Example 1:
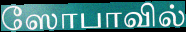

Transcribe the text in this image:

ஸோபாவில்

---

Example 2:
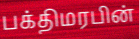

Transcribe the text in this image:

பக்திமரபின்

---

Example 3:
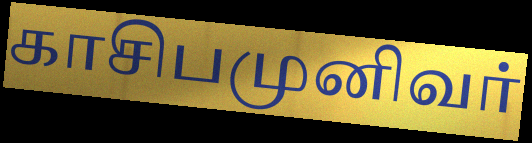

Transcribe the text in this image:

காசிபமுனிவர்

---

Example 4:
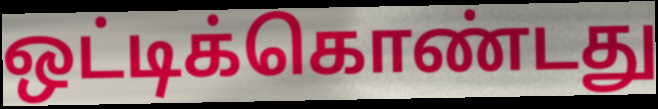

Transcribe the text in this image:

ஒட்டிக்கொண்டது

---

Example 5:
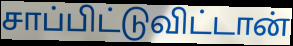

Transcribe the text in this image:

சாப்பிட்டுவிட்டான்